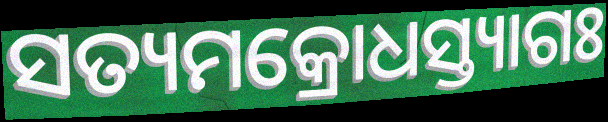
ସତ୍ୟମକ୍ରୋଧସ୍ତ୍ୟାଗଃ